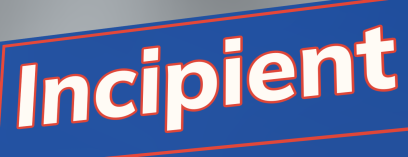
Incipient